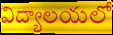
విద్యాలయలో